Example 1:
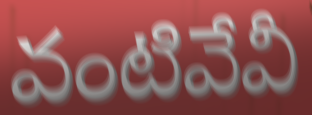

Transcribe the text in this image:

వంటివేవీ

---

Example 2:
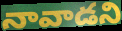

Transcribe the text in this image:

నావాడని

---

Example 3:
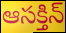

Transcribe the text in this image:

ఆసక్తిన్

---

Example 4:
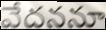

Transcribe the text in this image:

వేదననూ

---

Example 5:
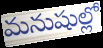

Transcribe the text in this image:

మనుషుల్లో